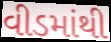
વીડમાંથી